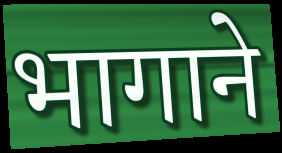
भागाने